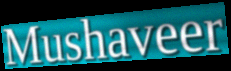
Mushaveer